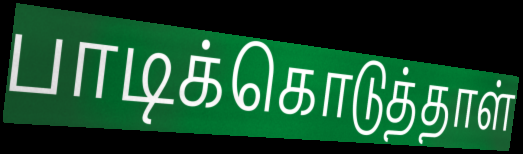
பாடிக்கொடுத்தாள்